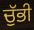
ਚੁੱਭੀ